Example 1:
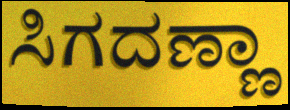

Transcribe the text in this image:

ಸಿಗದಣ್ಣಾ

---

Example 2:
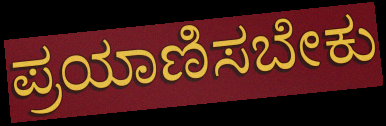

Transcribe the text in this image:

ಪ್ರಯಾಣಿಸಬೇಕು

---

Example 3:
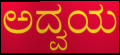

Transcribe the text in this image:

ಅದ್ವಯ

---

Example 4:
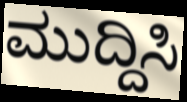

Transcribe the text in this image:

ಮುದ್ದಿಸಿ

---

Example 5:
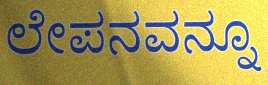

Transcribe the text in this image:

ಲೇಪನವನ್ನೂ